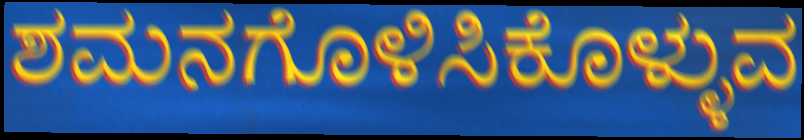
ಶಮನಗೊಳಿಸಿಕೊಳ್ಳುವ